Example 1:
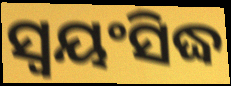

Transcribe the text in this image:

ସ୍ୱୟଂସିଦ୍ଧ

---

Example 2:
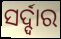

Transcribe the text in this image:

ସର୍ଦ୍ଦାର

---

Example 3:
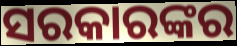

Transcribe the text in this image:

ସରକାରଙ୍କର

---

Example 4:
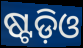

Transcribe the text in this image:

ଷ୍ଟଡ଼ିଓ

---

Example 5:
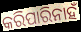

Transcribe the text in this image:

କରିପାରିନାହଁ